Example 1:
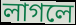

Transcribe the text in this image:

লাগলে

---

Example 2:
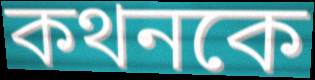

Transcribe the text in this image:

কথনকে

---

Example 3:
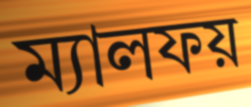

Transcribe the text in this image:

ম্যালফয়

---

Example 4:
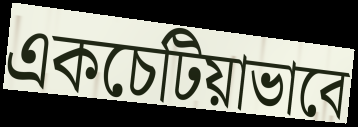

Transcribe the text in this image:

একচেটিয়াভাবে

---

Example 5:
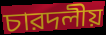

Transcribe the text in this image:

চারদলীয়